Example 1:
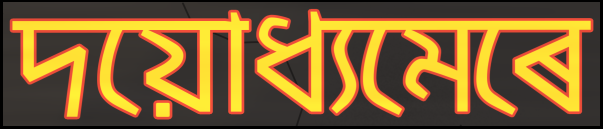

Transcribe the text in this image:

দয়োধ্যমেৰে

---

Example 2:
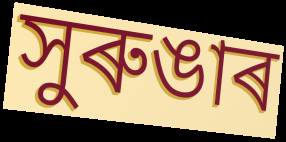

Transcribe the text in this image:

সুৰুঙাৰ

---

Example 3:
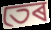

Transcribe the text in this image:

তেৰ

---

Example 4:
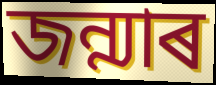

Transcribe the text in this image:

জন্মাৰ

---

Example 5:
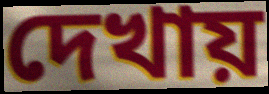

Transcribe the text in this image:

দেখায়